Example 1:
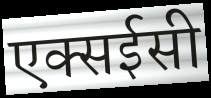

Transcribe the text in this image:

एक्सईसी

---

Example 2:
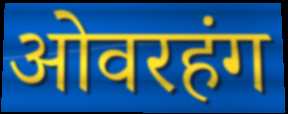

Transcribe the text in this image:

ओवरहंग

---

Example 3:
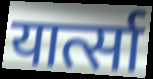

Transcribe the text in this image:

यार्त्सा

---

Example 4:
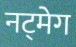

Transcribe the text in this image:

नट्मेग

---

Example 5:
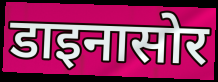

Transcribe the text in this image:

डाइनासोर